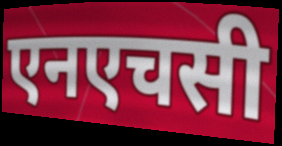
एनएचसी